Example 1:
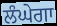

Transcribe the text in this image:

ਲੰਘੇਗਾ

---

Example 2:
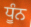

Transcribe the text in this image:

ਧੂੰਨ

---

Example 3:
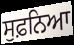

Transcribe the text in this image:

ਸੁਫ਼ਨਿਆ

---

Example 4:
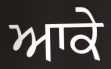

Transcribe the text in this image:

ਆਕੇ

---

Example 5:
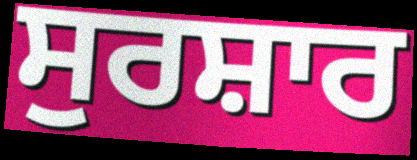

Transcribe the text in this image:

ਸੁਰਸ਼ਾਰ